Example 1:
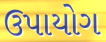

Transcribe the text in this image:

ઉપાયોગ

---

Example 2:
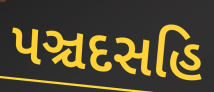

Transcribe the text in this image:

પઞ્ચદસહિ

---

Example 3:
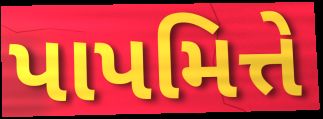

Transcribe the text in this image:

પાપમિત્તે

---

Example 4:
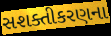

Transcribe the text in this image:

સશક્તીકરણના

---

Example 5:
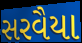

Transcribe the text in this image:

સરવૈયા